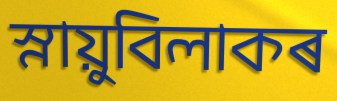
স্নায়ুবিলাকৰ